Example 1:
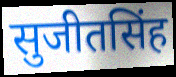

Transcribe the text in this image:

सुजीतसिंह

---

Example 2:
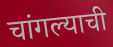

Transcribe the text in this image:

चांगल्याची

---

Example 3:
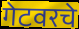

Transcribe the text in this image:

गेटवरचे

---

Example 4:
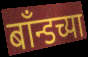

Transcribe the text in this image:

बाँन्डच्या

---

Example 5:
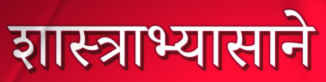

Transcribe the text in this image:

शास्त्राभ्यासाने